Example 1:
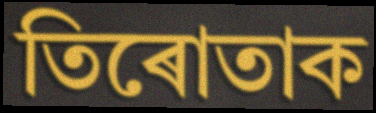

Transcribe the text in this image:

তিৰোতাক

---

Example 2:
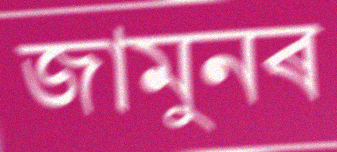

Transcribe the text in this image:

জামুনৰ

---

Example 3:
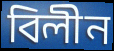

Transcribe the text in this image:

বিলীন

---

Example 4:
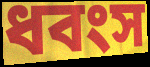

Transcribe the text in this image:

ধবংস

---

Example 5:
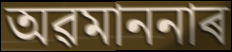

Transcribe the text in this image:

অৱমাননাৰ